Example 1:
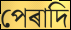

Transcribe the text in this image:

পেৰাদি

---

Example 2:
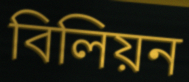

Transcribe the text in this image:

বিলিয়ন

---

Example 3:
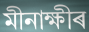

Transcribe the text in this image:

মীনাক্ষীৰ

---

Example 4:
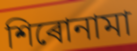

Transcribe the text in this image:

শিৰোনামা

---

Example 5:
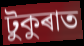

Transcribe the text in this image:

টুকুৰাত